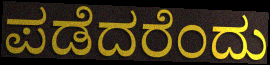
ಪಡೆದರೆಂದು